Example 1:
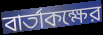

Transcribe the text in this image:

বার্তাকক্ষের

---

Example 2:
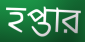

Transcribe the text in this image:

হপ্তার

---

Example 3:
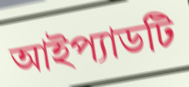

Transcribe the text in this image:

আইপ্যাডটি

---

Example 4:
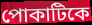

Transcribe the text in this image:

পোকাটিকে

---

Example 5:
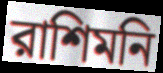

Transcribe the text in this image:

রাশিমনি